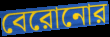
বেরোনোর